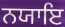
ਨਯਾਇ